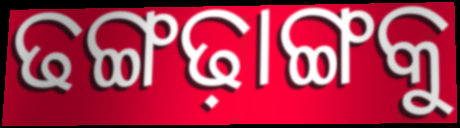
ଢଙ୍ଗଢ଼ାଙ୍ଗକୁ